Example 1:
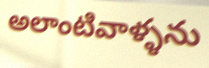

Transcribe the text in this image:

అలాంటివాళ్ళను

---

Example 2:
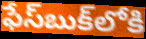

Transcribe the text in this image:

ఫేస్‌బుక్‌లోకి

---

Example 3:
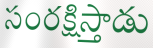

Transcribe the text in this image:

సంరక్షిస్తాడు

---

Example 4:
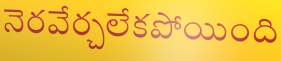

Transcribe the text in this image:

నెరవేర్చలేకపోయింది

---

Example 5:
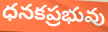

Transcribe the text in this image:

ధనకప్రభువు